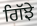
ਗਿੱਝੇ